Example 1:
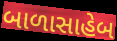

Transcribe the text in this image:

બાળાસાહેબ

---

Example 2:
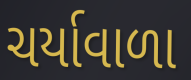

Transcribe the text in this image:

ચર્યાવાળા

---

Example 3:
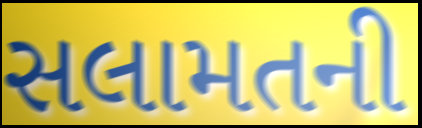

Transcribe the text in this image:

સલામતની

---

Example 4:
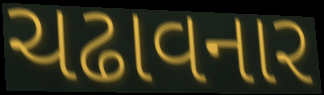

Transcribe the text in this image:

ચઢાવનાર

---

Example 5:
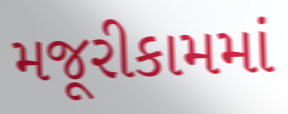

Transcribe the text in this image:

મજૂરીકામમાં